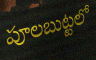
పూలబుట్టలో